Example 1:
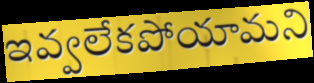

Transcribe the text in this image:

ఇవ్వలేకపోయామని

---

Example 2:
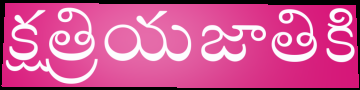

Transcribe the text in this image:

క్షత్రియజాతికి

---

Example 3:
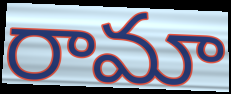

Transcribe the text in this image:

రామా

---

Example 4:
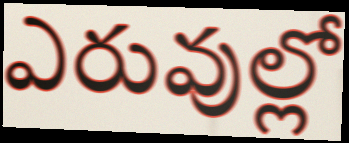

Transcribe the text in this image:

ఎరువుల్లో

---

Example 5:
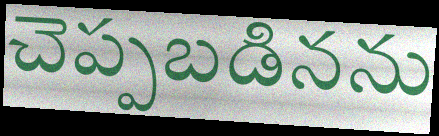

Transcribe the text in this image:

చెప్పబడినను